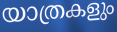
യാത്രകളും